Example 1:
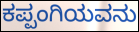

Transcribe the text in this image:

ಕಪ್ಪಂಗಿಯವನು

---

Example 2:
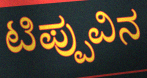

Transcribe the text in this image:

ಟಿಪ್ಪುವಿನ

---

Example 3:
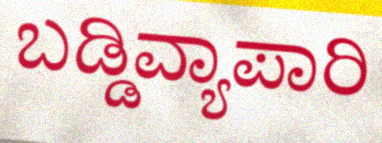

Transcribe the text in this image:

ಬಡ್ಡಿವ್ಯಾಪಾರಿ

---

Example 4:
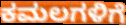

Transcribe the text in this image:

ಕಮಲಗಳಿಗೆ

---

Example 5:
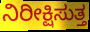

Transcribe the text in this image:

ನಿರೀಕ್ಷಿಸುತ್ತ